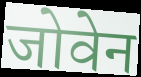
जोवेन